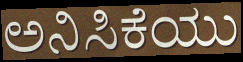
ಅನಿಸಿಕೆಯು